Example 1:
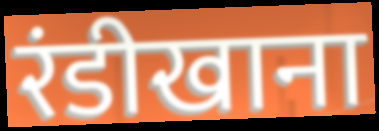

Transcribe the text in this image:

रंडीखाना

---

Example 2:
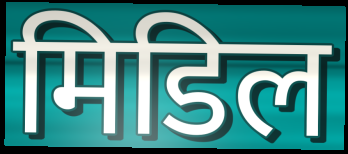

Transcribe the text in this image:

मिडिल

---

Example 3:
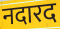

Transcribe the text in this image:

नदारद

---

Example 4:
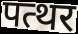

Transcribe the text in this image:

पत्थर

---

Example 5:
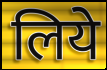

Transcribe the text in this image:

लिये